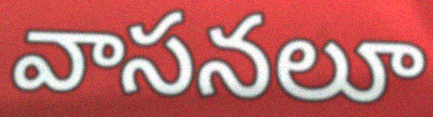
వాసనలూ